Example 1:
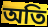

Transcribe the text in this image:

অতি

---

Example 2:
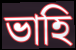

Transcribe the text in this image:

ভাহি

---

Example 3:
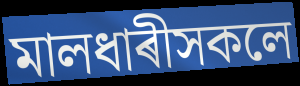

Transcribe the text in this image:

মালধাৰীসকলে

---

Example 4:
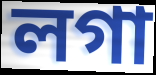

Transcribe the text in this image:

লগা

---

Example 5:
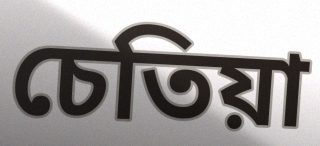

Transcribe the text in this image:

চেতিয়া